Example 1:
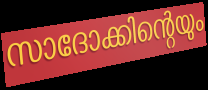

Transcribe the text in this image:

സാദോക്കിന്റെയും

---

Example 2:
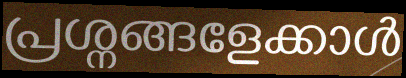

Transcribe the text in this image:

പ്രശ്നങ്ങളേക്കാൾ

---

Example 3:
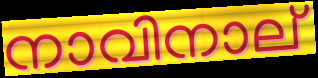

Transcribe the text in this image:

നാവിനാല്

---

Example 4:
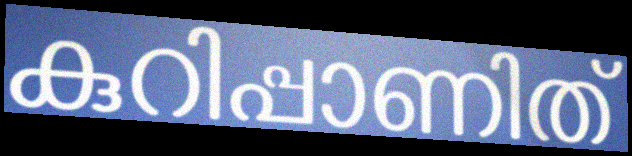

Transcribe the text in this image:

കുറിപ്പാണിത്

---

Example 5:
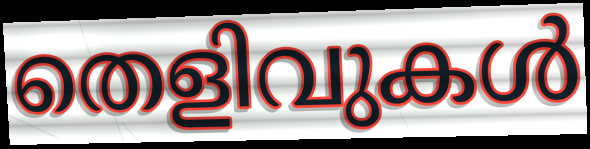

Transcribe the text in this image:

തെളിവുകൾ